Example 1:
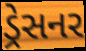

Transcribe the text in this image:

ડ્રેસનર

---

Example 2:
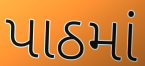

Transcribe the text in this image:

પાઠમાં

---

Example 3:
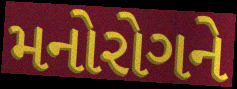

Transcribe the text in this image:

મનોરોગને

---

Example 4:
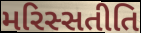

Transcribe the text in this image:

મરિસ્સતીતિ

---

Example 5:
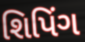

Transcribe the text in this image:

શિપિંગ